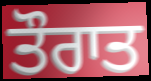
ਤੌਰਾਤ